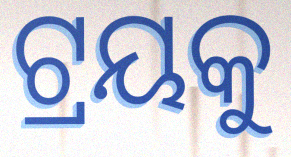
ଟ୍ରୟକୁ